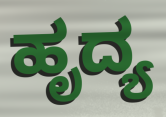
ಹೃದ್ಯ